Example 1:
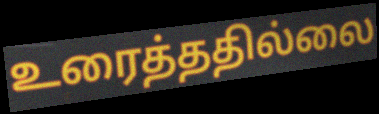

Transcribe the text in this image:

உரைத்ததில்லை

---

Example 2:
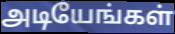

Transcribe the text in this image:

அடியேங்கள்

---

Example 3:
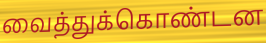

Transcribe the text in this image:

வைத்துக்கொண்டன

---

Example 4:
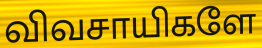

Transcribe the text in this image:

விவசாயிகளே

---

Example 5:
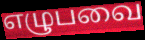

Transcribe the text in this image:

எழுபவை